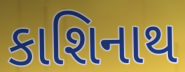
કાશિનાથ